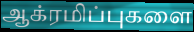
ஆக்ரமிப்புகளை